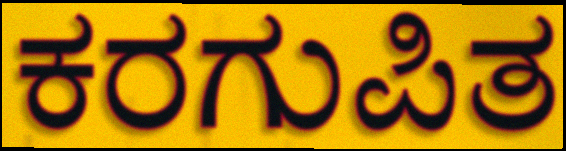
ಕರಗುಪಿತ